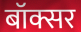
बॉक्सर